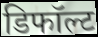
डिफॉल्ट